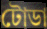
টোডা